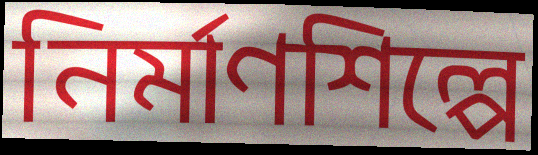
নির্মাণশিল্পে